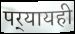
पर्यायही